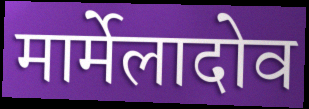
मार्मेलादोव